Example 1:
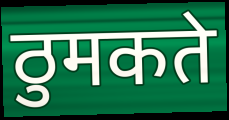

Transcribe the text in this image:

ठुमकते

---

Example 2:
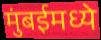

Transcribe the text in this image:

मुंबईमध्ये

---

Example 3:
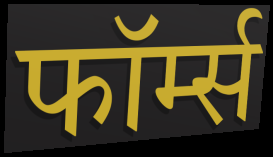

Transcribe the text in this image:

फॉर्म्स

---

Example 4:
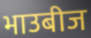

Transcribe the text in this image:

भाउबीज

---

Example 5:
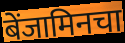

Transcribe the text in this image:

बेंजामिनचा